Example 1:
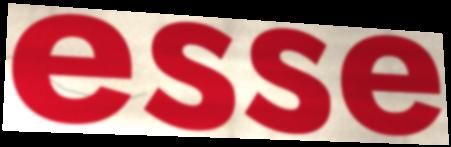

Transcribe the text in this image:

esse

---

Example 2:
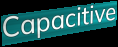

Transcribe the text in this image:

Capacitive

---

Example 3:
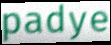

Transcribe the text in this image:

padye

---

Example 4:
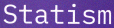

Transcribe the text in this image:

Statism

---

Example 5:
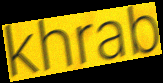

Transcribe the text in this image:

khrab